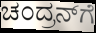
ಚಂದ್ರನ್‌ಗೆ